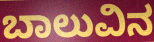
ಬಾಲುವಿನ